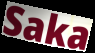
Saka